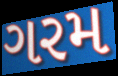
ગરમ